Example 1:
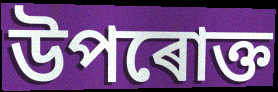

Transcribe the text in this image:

উপৰোক্ত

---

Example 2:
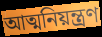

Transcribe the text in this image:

আত্মনিয়ন্ত্ৰণ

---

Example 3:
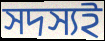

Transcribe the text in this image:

সদস্যই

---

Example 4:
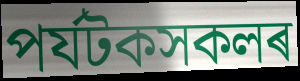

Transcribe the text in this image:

পৰ্যটকসকলৰ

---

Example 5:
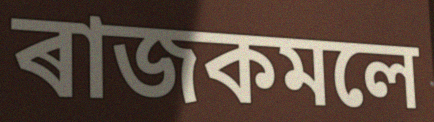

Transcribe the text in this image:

ৰাজকমলে